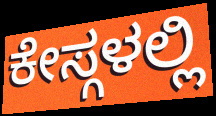
ಕೇಸ್ಗಳಲ್ಲಿ